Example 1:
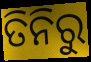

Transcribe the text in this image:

ତିନିରୁ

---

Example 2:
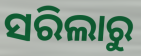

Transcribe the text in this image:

ସରିଲାରୁ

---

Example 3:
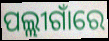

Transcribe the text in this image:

ପଲ୍ଲୀଗାଁରେ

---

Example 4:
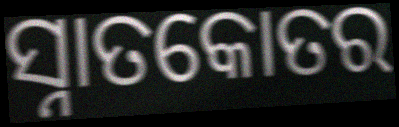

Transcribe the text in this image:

ସ୍ନାତକୋତର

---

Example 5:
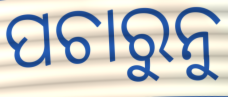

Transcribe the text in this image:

ପଚାରୁନୁ